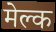
मेल्क